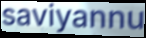
saviyannu